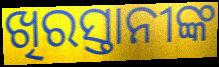
ଖିରସ୍ତାନୀଙ୍କ